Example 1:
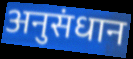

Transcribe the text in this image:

अनुसंधान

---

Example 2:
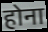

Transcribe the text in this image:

होना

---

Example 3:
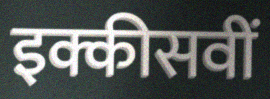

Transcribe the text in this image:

इक्कीसवीं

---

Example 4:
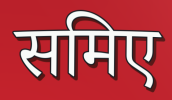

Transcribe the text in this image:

समिए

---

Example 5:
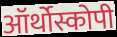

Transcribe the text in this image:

ऑर्थोस्कोपी